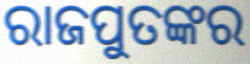
ରାଜପୁତଙ୍କର